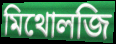
মিথোলজি